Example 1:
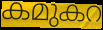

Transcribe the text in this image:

കമുകറ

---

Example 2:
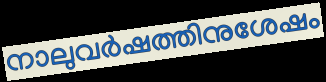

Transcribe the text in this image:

നാലുവർഷത്തിനുശേഷം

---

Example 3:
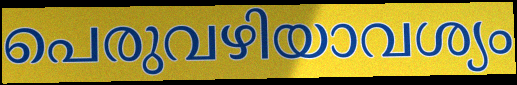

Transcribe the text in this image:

പെരുവഴിയാവശ്യം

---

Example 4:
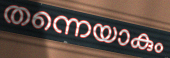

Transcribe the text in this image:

തന്നെയാകും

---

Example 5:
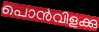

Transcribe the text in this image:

പൊൻവിളക്കു